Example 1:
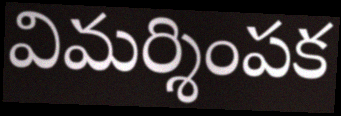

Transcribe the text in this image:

విమర్శింపక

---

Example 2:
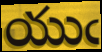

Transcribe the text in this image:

యుఁ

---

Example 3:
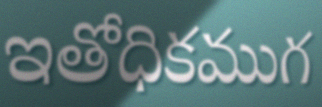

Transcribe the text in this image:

ఇతోధికముగ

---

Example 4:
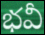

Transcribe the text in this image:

భవీ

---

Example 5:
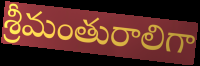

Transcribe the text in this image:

శ్రీమంతురాలిగా